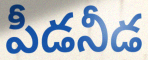
పీడనీడ